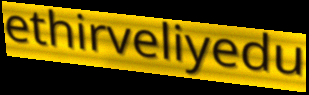
ethirveliyedu